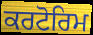
ਕਰਟੋਰਿਮ